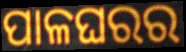
ପାଳଘରର